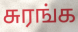
சுரங்க